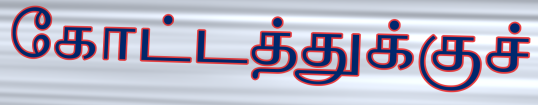
கோட்டத்துக்குச்